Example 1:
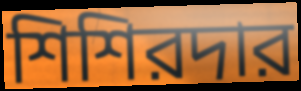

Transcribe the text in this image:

শিশিরদার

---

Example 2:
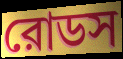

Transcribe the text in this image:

রোডস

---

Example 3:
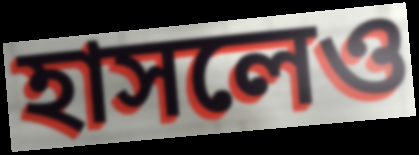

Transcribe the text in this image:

হাসলেও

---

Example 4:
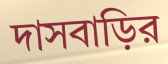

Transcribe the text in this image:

দাসবাড়ির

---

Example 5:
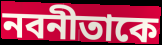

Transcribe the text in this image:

নবনীতাকে